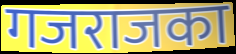
गजराजका